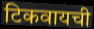
टिकवायची